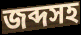
জব্দসহ